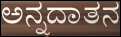
ಅನ್ನದಾತನ